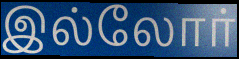
இல்லோர்